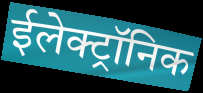
ईलेक्ट्रॉनिक